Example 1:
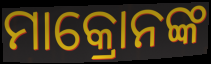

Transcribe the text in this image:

ମାକ୍ରୋନଙ୍କ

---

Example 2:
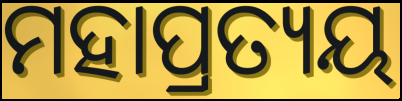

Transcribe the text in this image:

ମହାପ୍ରତ୍ୟୟ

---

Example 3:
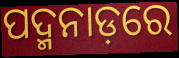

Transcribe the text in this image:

ପଦ୍ମନାଡ଼ରେ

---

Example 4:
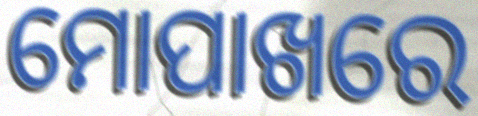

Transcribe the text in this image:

ମୋପାଖରେ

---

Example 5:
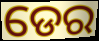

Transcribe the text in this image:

ଡେର